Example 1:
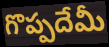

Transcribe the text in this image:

గొప్పదేమీ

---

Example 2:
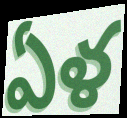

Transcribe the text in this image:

ఏళ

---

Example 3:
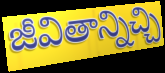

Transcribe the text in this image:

జీవితాన్నిచ్చి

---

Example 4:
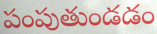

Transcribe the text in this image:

పంపుతుండడం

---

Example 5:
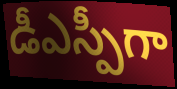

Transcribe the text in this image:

డీఎస్పీగా